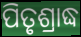
ପିତୃଶ୍ରାଦ୍ଧ